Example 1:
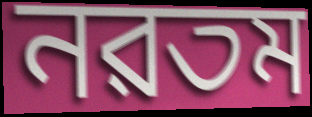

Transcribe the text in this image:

নৱতম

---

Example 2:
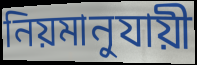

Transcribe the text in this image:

নিয়মানুযায়ী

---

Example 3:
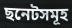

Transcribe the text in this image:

ছনেটসমূহ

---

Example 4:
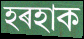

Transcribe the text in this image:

হৰহাক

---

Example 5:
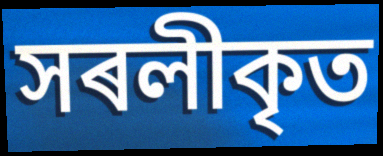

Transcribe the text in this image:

সৰলীকৃত